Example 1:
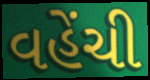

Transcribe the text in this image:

વહેંચી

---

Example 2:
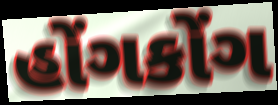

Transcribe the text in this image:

હોંગકોંગ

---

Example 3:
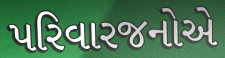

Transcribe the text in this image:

પરિવારજનોએ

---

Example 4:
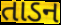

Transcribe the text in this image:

તાડન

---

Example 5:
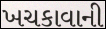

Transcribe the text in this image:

ખચકાવાની